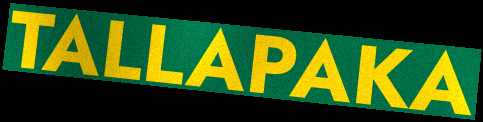
TALLAPAKA